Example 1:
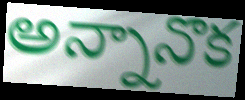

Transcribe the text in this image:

అన్నానొక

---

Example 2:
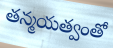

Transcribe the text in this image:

తన్మయత్వంతో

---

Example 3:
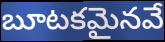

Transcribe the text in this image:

బూటకమైనవే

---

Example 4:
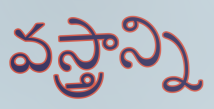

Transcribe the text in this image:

వస్త్రాన్ని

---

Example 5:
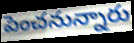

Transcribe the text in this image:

పెంచనున్నారు